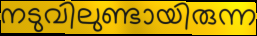
നടുവിലുണ്ടായിരുന്ന